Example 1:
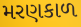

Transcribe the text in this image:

મરણકાળ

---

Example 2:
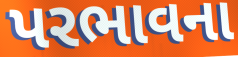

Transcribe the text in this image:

પરભાવના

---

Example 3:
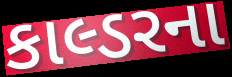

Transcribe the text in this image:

કાલ્ડરના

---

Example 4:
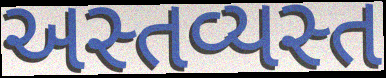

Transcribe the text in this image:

અસ્તવ્યસ્ત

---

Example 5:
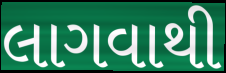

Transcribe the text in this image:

લાગવાથી